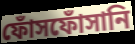
ফোঁসফোঁসানি